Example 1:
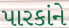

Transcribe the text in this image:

પારકાંને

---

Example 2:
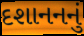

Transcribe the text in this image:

દશાનનનું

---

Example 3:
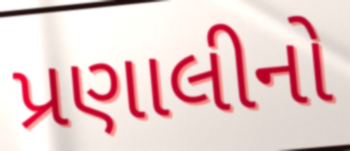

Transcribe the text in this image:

પ્રણાલીનો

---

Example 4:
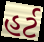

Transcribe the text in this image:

હર્ટ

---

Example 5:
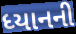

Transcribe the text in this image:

ધ્યાનની